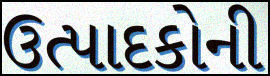
ઉત્પાદકોની